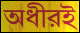
অধীরই